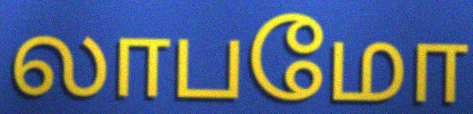
லாபமோ